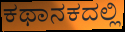
ಕಥಾನಕದಲ್ಲಿ